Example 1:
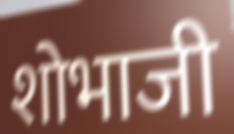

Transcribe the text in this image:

शोभाजी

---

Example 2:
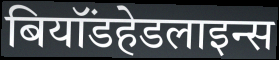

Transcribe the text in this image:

बियॉंडहेडलाइन्स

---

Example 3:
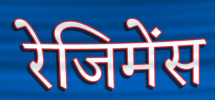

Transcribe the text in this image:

रेजिमेंस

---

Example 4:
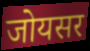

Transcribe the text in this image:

जोयसर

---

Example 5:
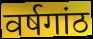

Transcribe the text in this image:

वर्षगांठ